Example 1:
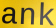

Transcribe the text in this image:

ank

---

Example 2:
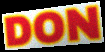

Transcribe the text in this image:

DON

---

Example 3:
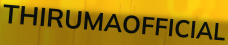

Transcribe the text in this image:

THIRUMAOFFICIAL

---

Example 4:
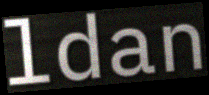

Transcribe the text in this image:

ldan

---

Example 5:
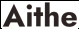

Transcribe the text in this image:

Aithe